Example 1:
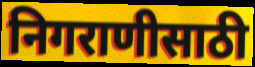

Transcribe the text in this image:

निगराणीसाठी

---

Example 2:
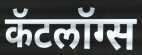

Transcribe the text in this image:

कॅटलॉग्स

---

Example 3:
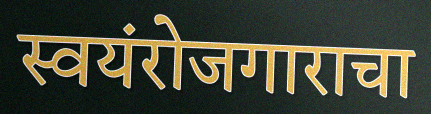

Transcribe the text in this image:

स्वयंरोजगाराचा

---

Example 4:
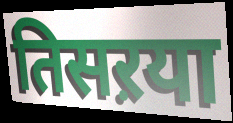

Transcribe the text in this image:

तिसऱया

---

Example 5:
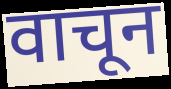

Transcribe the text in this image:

वाचून